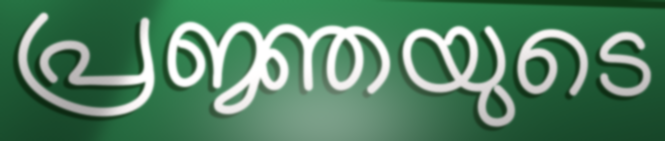
പ്രജ്ഞയുടെ